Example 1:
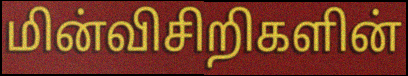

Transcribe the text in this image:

மின்விசிறிகளின்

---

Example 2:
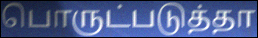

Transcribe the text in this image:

பொருட்படுத்தா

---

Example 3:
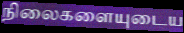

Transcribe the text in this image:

நிலைகளையுடைய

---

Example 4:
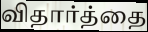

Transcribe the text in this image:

விதார்த்தை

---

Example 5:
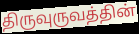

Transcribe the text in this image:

திருவுருவத்தின்